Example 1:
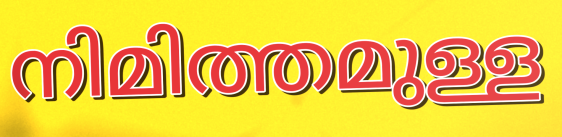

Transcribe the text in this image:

നിമിത്തമുള്ള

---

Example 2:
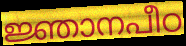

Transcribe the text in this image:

ജ്ഞാനപീഠ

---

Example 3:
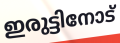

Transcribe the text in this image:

ഇരുട്ടിനോട്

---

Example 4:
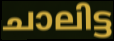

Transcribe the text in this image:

ചാലിട്ട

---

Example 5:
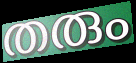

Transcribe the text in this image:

തരും